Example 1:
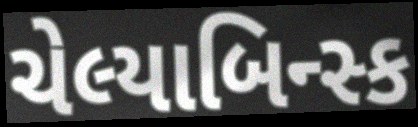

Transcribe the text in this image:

ચેલ્યાબિન્સ્ક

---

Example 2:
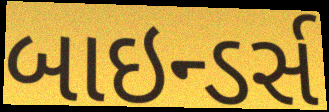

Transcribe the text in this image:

બાઇન્ડર્સ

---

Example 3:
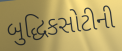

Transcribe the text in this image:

બુદ્ધિકસોટીની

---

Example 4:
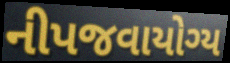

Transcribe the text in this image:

નીપજવાયોગ્ય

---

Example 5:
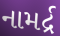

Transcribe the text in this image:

નામર્દ્ર